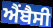
ਐਂਬੈਸੀ